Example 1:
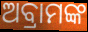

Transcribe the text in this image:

ଅବ୍ରାମଙ୍କ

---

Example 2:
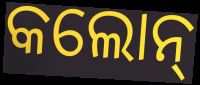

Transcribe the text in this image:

କଲୋନ୍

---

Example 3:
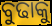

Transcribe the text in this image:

ବୁଢାକୁ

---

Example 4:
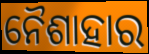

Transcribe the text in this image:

ନୈଶାହାର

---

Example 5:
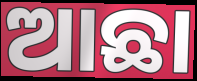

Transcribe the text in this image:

ଆଛା